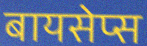
बायसेप्स